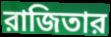
রাজিতার